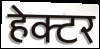
हेक्टर